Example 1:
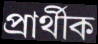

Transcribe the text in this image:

প্ৰাৰ্থীক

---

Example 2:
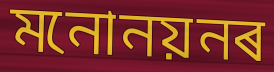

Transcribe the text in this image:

মনোনয়নৰ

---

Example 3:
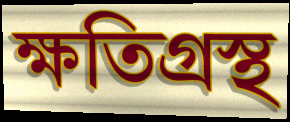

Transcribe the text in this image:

ক্ষতিগ্ৰস্থ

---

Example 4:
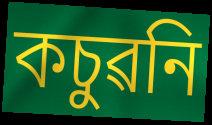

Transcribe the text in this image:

কচুৱনি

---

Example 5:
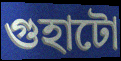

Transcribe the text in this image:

গুহাটো